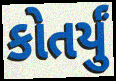
કોતર્યું